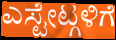
ಎಸ್ಟೇಟ್ಗಳಿಗೆ